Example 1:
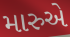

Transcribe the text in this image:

મારુએ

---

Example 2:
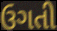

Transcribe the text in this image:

ઉગતી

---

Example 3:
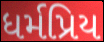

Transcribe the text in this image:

ધર્મપ્રિય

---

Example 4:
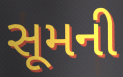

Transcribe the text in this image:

સૂમની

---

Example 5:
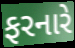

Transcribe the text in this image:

ફરનારે